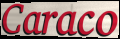
Caraco